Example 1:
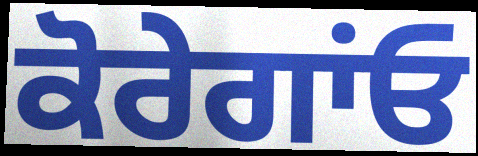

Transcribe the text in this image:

ਕੋਰੇਗਾਂਓ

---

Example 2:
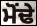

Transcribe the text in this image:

ਮੋਂਢੇ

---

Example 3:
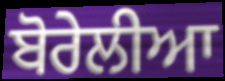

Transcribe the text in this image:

ਬੋਰੇਲੀਆ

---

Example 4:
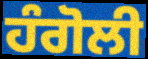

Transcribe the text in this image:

ਹੰਗੋਲੀ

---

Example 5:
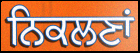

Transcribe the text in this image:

ਨਿਕਲਣਾਂ